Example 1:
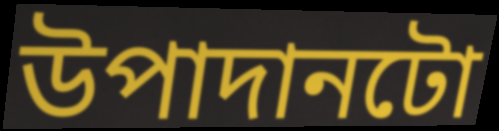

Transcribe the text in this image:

উপাদানটো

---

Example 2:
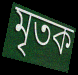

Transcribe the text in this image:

মৃতক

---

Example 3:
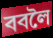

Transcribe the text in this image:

ববলৈ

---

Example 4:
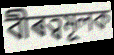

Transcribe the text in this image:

বীৰত্বমূলক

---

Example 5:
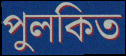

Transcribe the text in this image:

পুলকিত